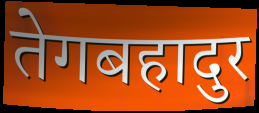
तेगबहादुर